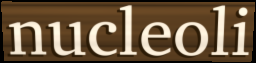
nucleoli